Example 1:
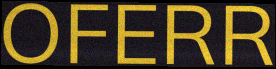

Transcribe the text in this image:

OFERR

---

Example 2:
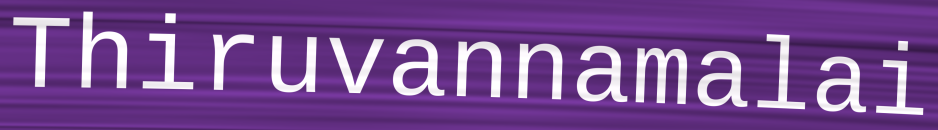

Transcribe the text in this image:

Thiruvannamalai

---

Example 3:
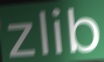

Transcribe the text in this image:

zlib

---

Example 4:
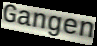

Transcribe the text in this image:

Gangen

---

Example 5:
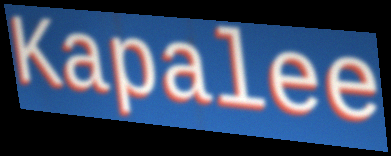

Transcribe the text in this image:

Kapalee